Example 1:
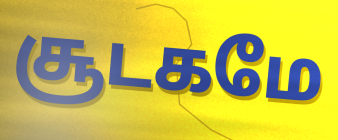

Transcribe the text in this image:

சூடகமே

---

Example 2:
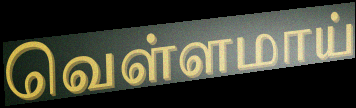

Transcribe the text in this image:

வெள்ளமாய்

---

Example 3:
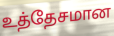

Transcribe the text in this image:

உத்தேசமான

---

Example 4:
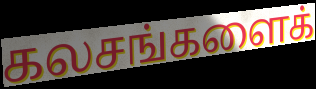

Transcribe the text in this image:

கலசங்களைக்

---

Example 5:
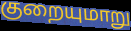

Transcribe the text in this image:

குறையுமாறு